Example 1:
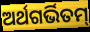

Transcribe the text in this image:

ଅର୍ଥଗର୍ଭିତମ୍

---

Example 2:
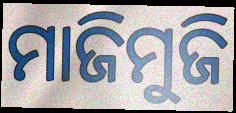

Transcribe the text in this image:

ମାଜିମୁଜି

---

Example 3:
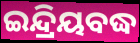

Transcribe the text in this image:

ଇନ୍ଦ୍ରିୟବଦ୍ଧ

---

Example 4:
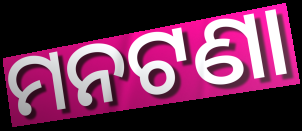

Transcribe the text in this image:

ମନଟଣା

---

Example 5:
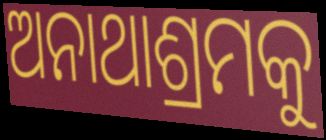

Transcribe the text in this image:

ଅନାଥାଶ୍ରମକୁ